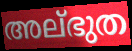
അല്ഭുത